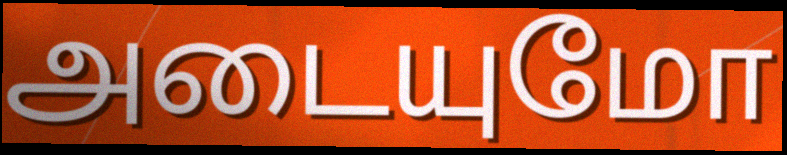
அடையுமோ